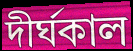
দীর্ঘকাল